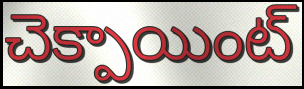
చెక్పాయింట్